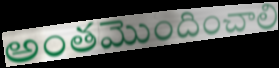
అంతమొందించాలి